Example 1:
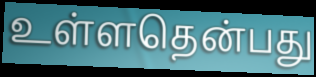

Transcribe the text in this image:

உள்ளதென்பது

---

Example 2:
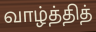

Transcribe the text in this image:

வாழ்த்தித்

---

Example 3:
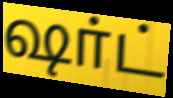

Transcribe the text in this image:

ஷர்ட்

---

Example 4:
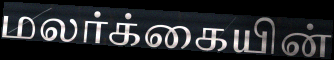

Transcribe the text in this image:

மலர்க்கையின்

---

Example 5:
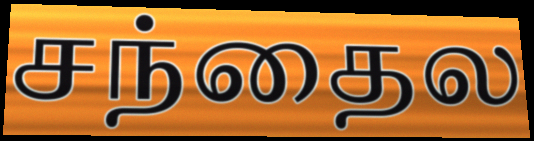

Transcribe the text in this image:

சந்தைல